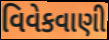
વિવેકવાણી